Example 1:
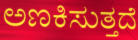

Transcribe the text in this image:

ಅಣಕಿಸುತ್ತದೆ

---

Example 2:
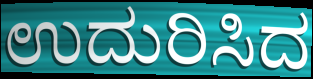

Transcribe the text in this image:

ಉದುರಿಸಿದ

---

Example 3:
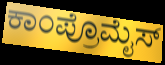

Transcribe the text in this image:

ಕಾಂಪ್ರೊಮೈಸ್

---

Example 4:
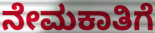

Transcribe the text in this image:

ನೇಮಕಾತಿಗೆ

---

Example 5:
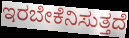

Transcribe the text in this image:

ಇರಬೇಕೆನಿಸುತ್ತದೆ